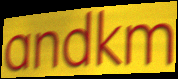
andkm